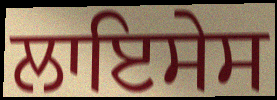
ਲਾਇਸੇਸ